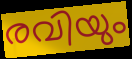
രവിയും